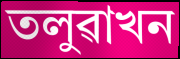
তলুৱাখন